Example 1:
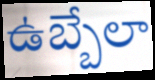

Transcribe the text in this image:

ఉబ్బేలా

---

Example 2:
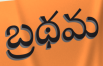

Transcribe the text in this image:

బ్రథమ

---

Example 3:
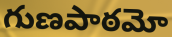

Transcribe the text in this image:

గుణపాఠమో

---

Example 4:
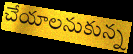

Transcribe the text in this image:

చేయాలనుకున్న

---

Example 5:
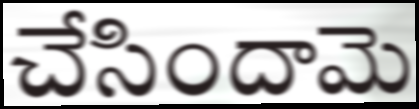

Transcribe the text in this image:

చేసిందామె